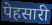
पेहसारी